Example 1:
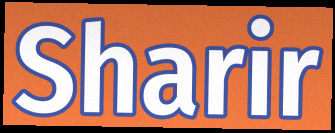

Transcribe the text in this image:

Sharir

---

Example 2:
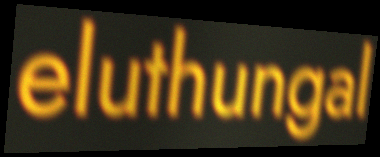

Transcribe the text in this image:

eluthungal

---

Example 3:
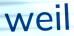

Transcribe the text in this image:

weil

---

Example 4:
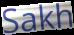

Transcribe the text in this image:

Sakh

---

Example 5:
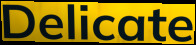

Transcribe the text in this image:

Delicate